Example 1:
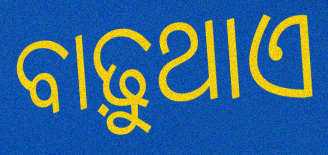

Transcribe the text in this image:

ବାଢ଼ୁଥାଏ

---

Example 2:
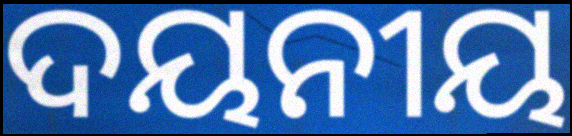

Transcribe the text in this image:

ଦୟନୀୟ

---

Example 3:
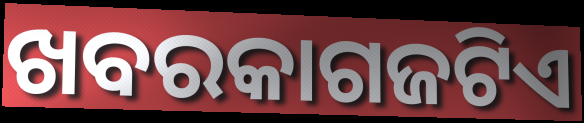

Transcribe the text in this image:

ଖବରକାଗଜଟିଏ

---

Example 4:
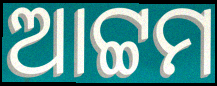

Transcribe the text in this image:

ଆଟ୍ଟମ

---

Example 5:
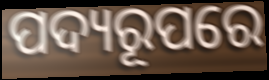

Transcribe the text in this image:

ପଦ୍ୟରୂପରେ